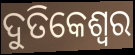
ଦୁତିକେଶ୍ୱର